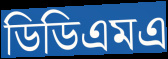
ডিডিএমএ